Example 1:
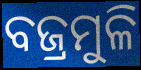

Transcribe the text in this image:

ବଜ୍ରମୁଳି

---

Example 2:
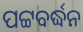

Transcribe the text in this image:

ପଟ୍ଟବର୍ଦ୍ଧନ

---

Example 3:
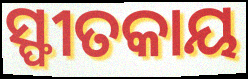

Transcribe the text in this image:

ସ୍ଫୀତକାୟ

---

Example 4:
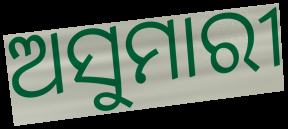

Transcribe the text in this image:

ଅସୁମାରୀ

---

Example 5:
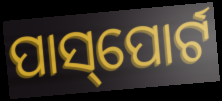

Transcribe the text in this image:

ପାସ୍‌ପୋର୍ଟ